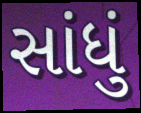
સાંધું